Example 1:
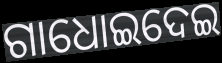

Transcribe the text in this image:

ଗାଧୋଇଦେଇ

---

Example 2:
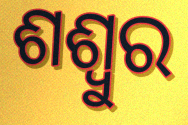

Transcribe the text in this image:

ଶଶ୍ୱୁର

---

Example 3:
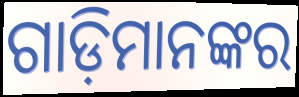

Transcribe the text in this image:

ଗାଡ଼ିମାନଙ୍କର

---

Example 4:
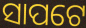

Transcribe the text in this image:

ସାପଟେ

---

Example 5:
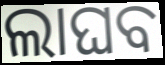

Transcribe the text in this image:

ଲାଘବ